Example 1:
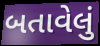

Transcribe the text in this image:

બતાવેલું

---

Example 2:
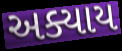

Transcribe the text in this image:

અક્યાય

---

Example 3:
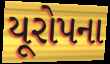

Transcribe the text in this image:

યૂરોપના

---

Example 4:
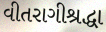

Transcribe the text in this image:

વીતરાગીશ્રદ્ધા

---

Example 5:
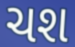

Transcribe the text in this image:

ચશ